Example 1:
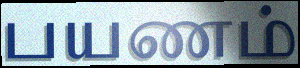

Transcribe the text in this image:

பயணம்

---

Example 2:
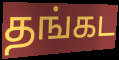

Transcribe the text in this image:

தங்கட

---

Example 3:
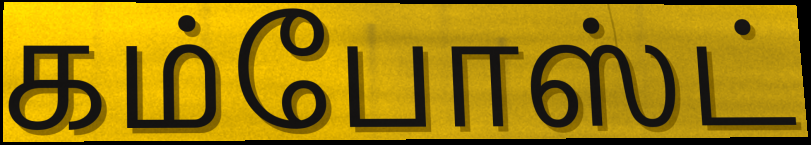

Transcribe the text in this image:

கம்போஸ்ட்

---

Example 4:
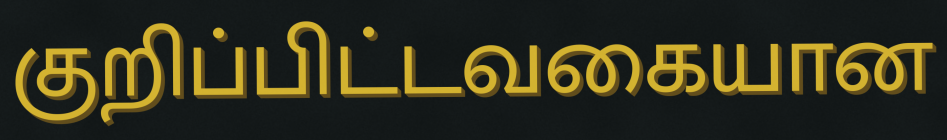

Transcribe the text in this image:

குறிப்பிட்டவகையான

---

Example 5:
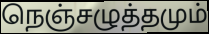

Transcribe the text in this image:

நெஞ்சழுத்தமும்